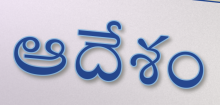
ఆదేశం